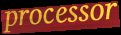
processor